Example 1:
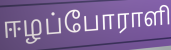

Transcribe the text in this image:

ஈழப்போராளி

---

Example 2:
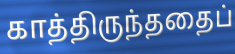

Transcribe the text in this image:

காத்திருந்ததைப்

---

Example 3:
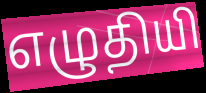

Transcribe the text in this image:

எழுதியி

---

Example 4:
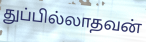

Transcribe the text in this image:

துப்பில்லாதவன்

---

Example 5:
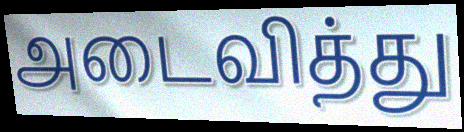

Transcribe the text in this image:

அடைவித்து